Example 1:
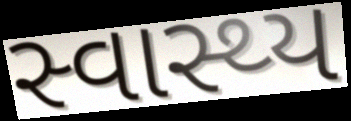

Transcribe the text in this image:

સ્વાસ્થ્ય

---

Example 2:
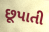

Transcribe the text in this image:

છૂપાતી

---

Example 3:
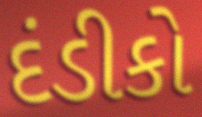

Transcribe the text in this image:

દંડીકો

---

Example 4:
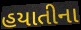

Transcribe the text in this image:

હયાતીના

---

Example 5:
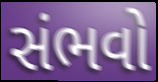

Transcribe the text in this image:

સંભવો